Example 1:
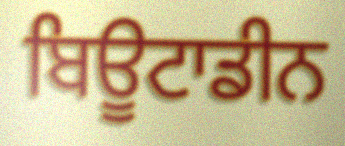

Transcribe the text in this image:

ਬਿਊਟਾਡੀਨ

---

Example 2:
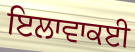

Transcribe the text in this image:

ਇਲਾਵਾਕਈ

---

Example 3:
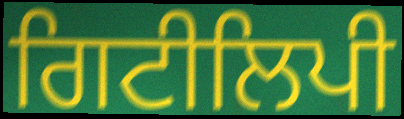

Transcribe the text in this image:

ਗਿਟੀਲਿਪੀ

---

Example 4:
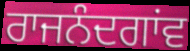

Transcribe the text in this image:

ਰਾਜਨੰਦਗਾਂਵ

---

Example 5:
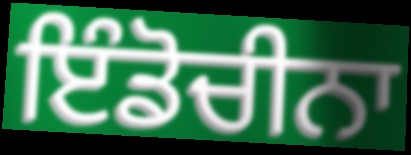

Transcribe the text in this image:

ਇੰਡੋਚੀਨਾ